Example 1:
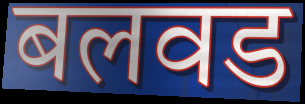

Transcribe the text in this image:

बलवड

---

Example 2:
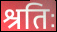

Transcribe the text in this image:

श्रतिः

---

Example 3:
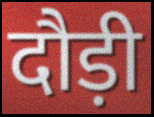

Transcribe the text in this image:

दौड़ी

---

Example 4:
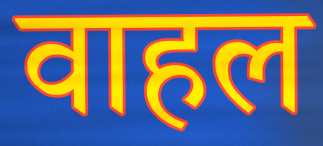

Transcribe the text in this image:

वाहल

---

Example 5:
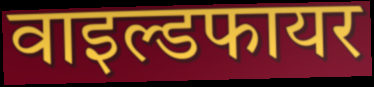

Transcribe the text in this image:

वाइल्डफायर